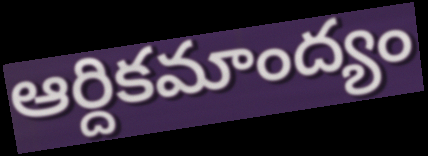
ఆర్దికమాంద్యం